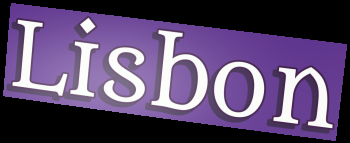
Lisbon